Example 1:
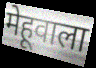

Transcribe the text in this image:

मेहूवाला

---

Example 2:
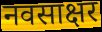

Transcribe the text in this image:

नवसाक्षर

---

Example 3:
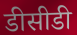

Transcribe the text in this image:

डीसीडी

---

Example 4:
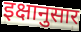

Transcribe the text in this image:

इक्षानुसार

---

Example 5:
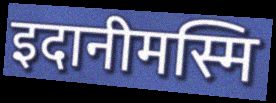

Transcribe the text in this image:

इदानीमस्मि